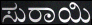
ಸುರಾಯಿ